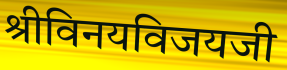
श्रीविनयविजयजी